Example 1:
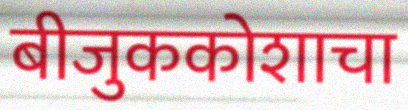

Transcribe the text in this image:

बीजुककोशाचा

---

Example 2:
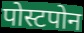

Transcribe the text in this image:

पोस्टपोन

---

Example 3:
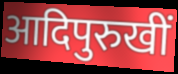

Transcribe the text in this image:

आदिपुरुखीं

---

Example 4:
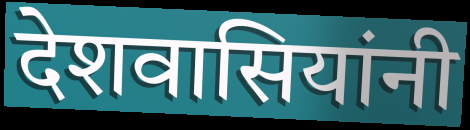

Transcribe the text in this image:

देशवासियांनी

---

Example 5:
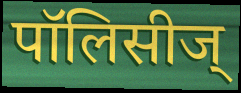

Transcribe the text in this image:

पॉलिसीज्